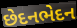
છેદનભેદન